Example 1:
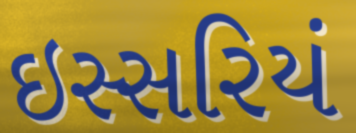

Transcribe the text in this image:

ઇસ્સરિયં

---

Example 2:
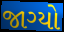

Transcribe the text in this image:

જાગ્યો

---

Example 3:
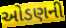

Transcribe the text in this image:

ઓડણની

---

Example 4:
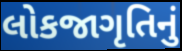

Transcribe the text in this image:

લોકજાગૃતિનું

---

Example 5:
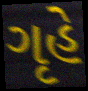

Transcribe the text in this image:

ગૃહે